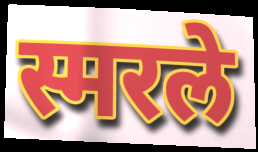
स्मरले